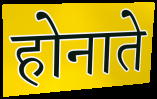
होनाते